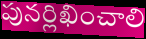
పునర్లిఖించాలి